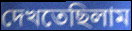
দেখতেছিলাম